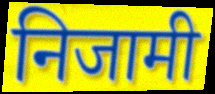
निजामी